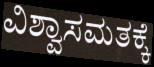
ವಿಶ್ವಾಸಮತಕ್ಕೆ